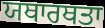
ਯਥਾਰਥਤਾ